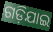
ଗଡ଼ିଯାଇ